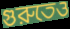
গুরুতেও